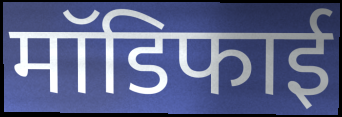
मॉडिफाई